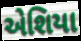
એશિયા